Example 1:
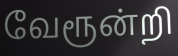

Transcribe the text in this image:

வேரூன்றி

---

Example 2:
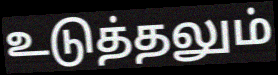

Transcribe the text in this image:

உடுத்தலும்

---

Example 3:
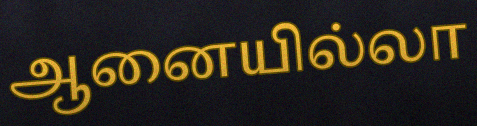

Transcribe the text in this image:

ஆனையில்லா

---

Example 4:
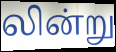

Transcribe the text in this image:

லின்று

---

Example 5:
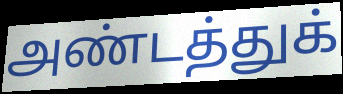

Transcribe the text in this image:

அண்டத்துக்